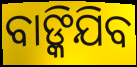
ବାଙ୍କିଯିବ